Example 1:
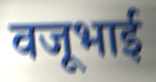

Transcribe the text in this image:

वजूभाई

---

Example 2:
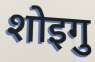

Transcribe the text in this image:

शोइगु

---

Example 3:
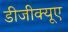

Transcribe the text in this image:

डीजीक्यूए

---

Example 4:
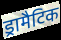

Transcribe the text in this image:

ड्रामैटिक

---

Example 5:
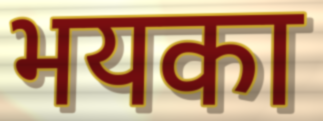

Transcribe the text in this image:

भयका